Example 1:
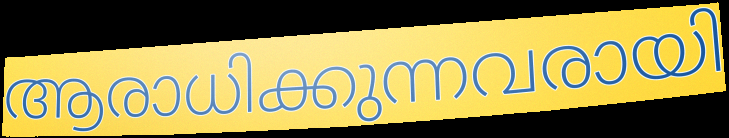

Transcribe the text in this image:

ആരാധിക്കുന്നവരായി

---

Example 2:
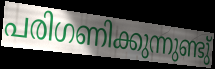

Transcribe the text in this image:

പരിഗണിക്കുന്നുണ്ടു്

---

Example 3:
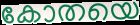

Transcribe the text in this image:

കോതയെ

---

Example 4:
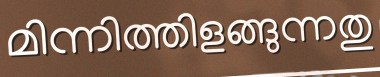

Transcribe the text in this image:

മിന്നിത്തിളങ്ങുന്നതു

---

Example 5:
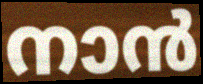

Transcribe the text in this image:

നാൻ